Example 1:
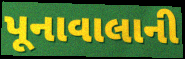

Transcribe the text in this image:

પૂનાવાલાની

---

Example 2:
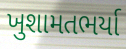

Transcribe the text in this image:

ખુશામતભર્યા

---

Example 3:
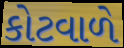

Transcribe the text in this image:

કોટવાળે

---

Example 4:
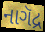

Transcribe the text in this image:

નાગૅદ્ર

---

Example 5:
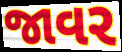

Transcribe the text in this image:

જાવર